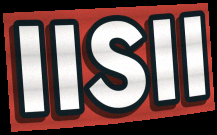
IISII